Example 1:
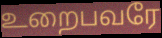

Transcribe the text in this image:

உறைபவரே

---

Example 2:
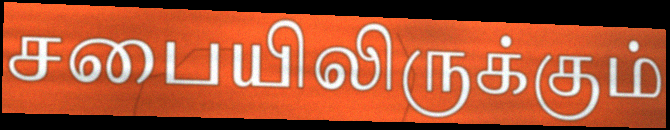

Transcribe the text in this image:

சபையிலிருக்கும்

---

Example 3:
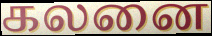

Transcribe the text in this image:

கலனை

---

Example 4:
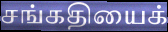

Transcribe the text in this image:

சங்கதியைக்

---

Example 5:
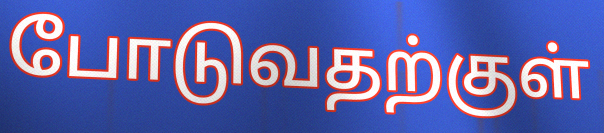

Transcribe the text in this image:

போடுவதற்குள்